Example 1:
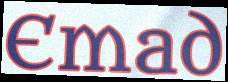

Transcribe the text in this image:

Emad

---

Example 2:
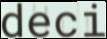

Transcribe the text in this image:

deci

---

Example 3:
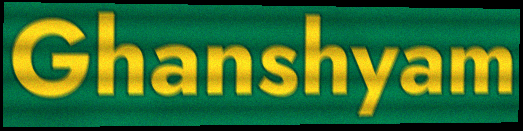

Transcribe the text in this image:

Ghanshyam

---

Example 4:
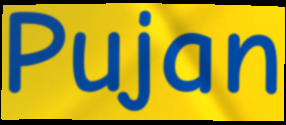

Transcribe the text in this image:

Pujan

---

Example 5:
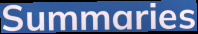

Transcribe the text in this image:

Summaries